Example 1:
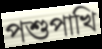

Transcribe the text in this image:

পশুপাখি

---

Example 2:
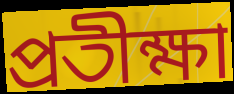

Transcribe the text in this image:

প্রতীক্ষা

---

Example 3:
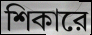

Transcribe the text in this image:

শিকারে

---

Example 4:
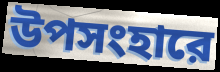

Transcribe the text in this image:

উপসংহারে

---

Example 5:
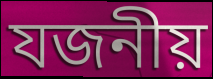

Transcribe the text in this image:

যজনীয়